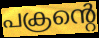
പക്രന്റെ